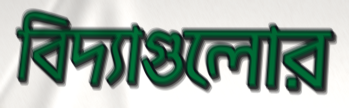
বিদ্যাগুলোর